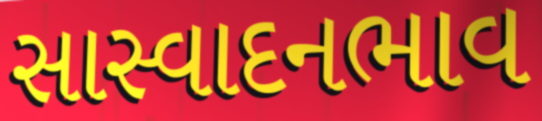
સાસ્વાદનભાવ